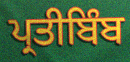
ਪ੍ਰਤੀਬਿੰਬ